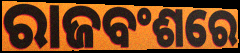
ରାଜବଂଶରେ